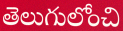
తెలుగులోంచి